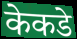
केकडे